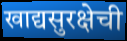
खाद्यसुरक्षेची